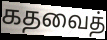
கதவைத்